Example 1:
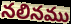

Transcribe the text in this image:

నలినము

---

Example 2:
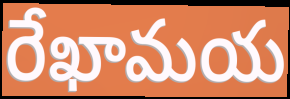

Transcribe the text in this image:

రేఖామయ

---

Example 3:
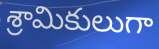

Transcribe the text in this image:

శ్రామికులుగా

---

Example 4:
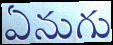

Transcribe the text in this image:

ఏనుగు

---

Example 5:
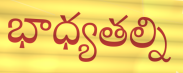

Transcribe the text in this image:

భాధ్యతల్ని